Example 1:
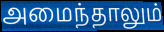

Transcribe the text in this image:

அமைந்தாலும்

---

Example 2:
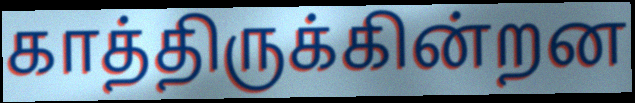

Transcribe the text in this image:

காத்திருக்கின்றன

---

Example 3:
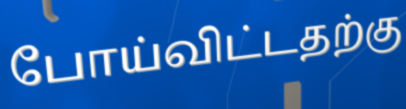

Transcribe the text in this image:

போய்விட்டதற்கு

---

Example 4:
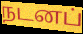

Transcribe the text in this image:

நடனப்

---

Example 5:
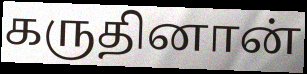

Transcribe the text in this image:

கருதினான்